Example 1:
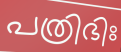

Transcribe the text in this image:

പത്രിഭിഃ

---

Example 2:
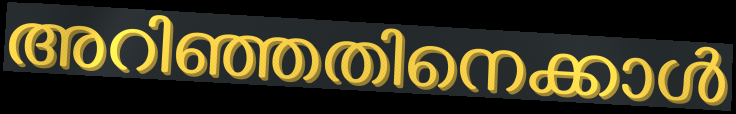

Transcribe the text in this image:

അറിഞ്ഞതിനെക്കാൾ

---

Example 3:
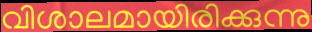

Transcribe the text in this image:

വിശാലമായിരിക്കുന്നു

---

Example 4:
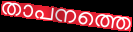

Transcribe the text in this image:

താപനത്തെ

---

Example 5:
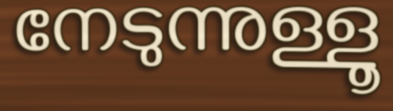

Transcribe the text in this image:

നേടുന്നുള്ളൂ